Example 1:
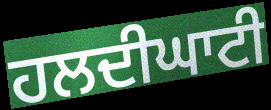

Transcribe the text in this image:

ਹਲਦੀਘਾਟੀ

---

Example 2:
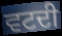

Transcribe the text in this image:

ਵਟਦੀ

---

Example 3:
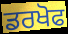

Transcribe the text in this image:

ਡਰਖੋਫ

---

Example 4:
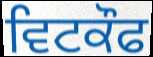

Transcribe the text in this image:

ਵਿਟਕੌਫ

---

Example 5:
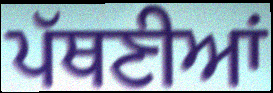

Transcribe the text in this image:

ਪੱਥਣੀਆਂ